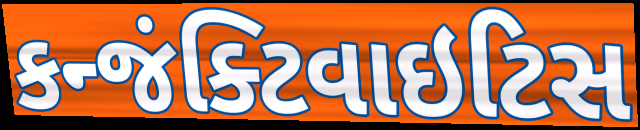
કન્જંક્ટિવાઇટિસ